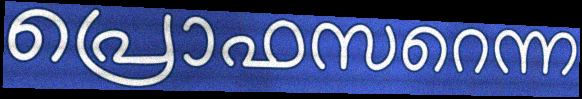
പ്രൊഫസറെന്ന